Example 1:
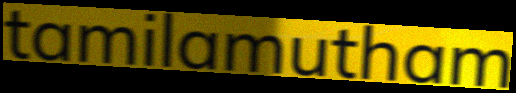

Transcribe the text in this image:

tamilamutham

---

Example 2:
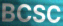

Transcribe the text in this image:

BCSC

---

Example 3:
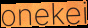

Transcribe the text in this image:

onekei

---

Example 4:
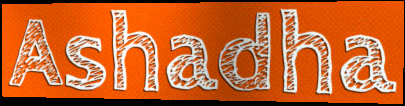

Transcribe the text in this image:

Ashadha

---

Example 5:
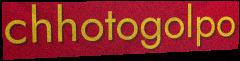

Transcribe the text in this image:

chhotogolpo